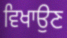
ਵਿਖਾਉਣ